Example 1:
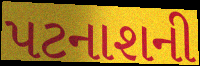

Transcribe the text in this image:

પટનાશની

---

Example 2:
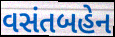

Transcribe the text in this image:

વસંતબહેન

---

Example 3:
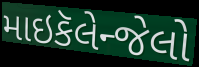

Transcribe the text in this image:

માઇકૅલેન્જેલો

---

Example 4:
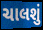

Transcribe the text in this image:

ચાલશું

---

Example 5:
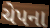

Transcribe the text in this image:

ચેપના